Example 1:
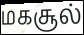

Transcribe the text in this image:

மகசூல்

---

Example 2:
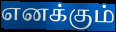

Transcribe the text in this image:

எனக்கும்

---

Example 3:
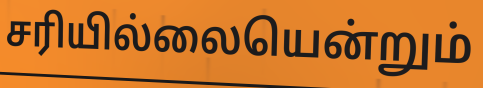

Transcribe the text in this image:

சரியில்லையென்றும்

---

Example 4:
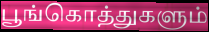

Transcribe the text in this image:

பூங்கொத்துகளும்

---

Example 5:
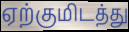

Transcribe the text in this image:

ஏற்குமிடத்து